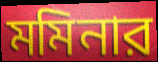
মমিনার